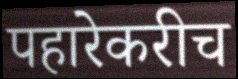
पहारेकरीच